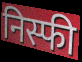
निस्फी